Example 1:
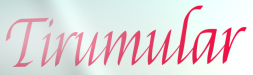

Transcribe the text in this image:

Tirumular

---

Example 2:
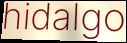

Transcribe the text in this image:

hidalgo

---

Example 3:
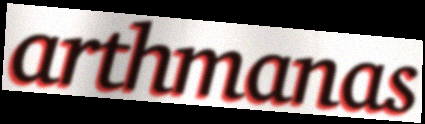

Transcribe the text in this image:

arthmanas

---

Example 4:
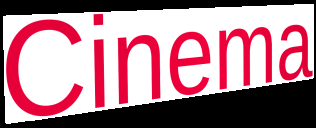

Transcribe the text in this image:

Cinema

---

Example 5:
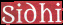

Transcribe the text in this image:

Sidhi